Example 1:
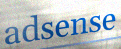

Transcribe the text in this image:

adsense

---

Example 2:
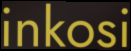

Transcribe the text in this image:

inkosi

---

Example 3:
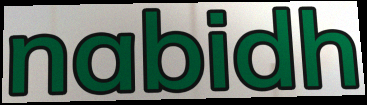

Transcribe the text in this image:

nabidh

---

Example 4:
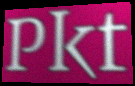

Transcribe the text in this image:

Pkt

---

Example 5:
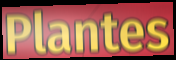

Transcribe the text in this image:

Plantes